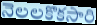
నెలలకొకసారి